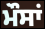
ਮੌਸਾਂ